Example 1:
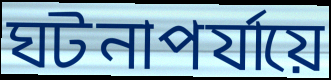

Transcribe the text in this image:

ঘটনাপর্যায়ে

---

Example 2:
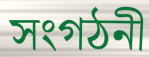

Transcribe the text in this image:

সংগঠনী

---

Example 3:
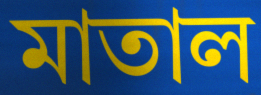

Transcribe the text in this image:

মাতাল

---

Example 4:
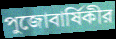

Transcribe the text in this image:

পুজোবার্ষিকীর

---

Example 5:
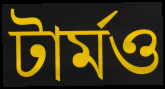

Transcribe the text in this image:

টার্মও